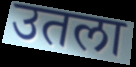
उतला